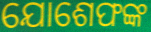
ଯୋଶେଫଙ୍କ